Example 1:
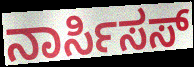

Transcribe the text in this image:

ನಾರ್ಸಿಸಸ್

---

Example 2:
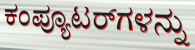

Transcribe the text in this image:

ಕಂಪ್ಯೂಟರ್‌ಗಳನ್ನು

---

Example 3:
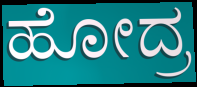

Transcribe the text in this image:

ಹೋದ್ರ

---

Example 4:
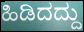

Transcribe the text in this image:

ಹಿಡಿದದ್ದು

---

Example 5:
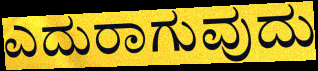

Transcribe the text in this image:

ಎದುರಾಗುವುದು